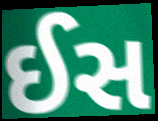
ઈસ